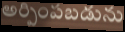
అర్పింపబడును